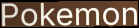
Pokemon